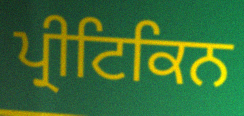
ਪ੍ਰੀਟਿਕਿਨ